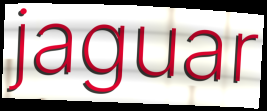
jaguar